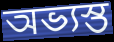
অভ্যস্ত